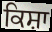
ਕਿਸ਼ਾ